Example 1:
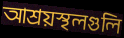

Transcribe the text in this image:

আশ্রয়স্থলগুলি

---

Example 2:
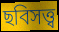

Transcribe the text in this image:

ছবিসত্ত্ব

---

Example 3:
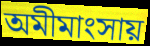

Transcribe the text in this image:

অমীমাংসায়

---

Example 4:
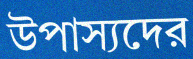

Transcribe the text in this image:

উপাস্যদের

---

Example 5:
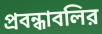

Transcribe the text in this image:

প্রবন্ধাবলির